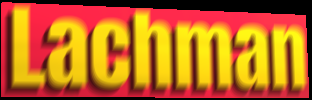
Lachman